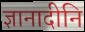
ज्ञानादीनि